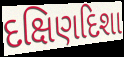
દક્ષિણદિશા